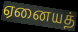
ஏனையத்